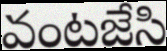
వంటజేసి